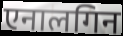
एनालगिन